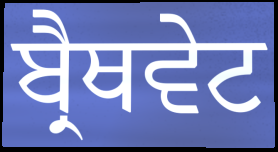
ਬ੍ਰੈਥਵੇਟ